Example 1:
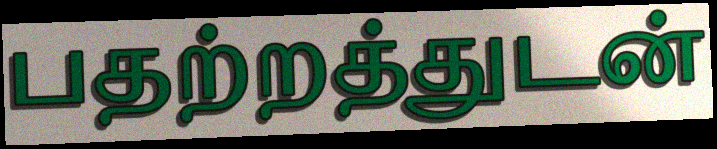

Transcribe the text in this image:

பதற்றத்துடன்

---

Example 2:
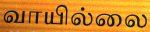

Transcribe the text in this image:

வாயில்லை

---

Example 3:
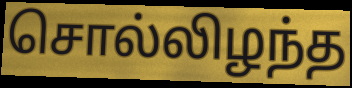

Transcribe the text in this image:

சொல்லிழந்த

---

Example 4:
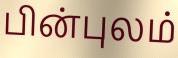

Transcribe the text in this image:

பின்புலம்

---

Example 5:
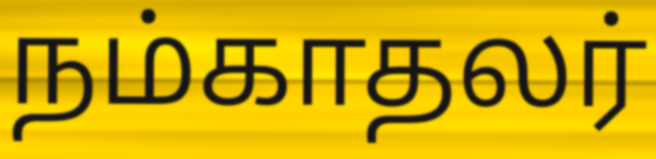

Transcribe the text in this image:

நம்காதலர்